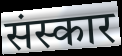
संस्‍कार